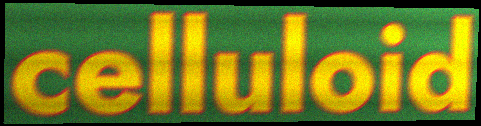
celluloid